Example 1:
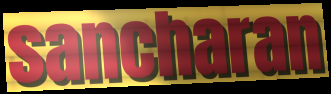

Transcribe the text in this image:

sancharan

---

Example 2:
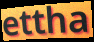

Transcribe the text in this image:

ettha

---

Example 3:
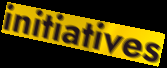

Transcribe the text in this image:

initiatives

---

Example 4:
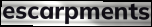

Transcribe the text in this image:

escarpments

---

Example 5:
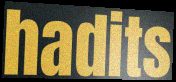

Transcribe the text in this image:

hadits